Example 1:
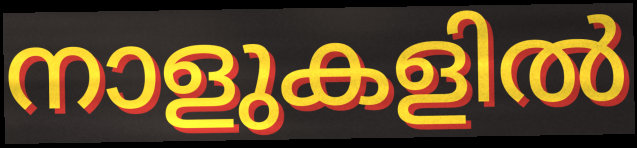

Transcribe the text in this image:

നാളുകളിൽ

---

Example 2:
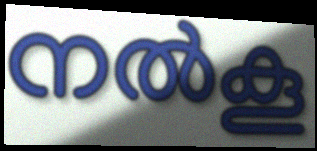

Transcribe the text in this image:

നൽകൂ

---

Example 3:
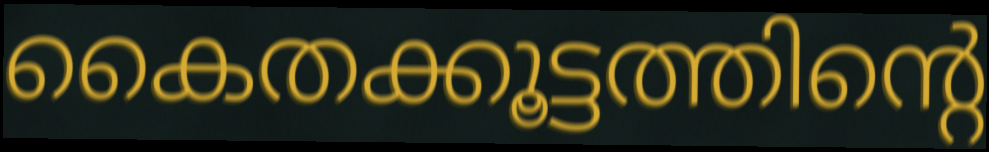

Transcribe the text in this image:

കൈതക്കൂട്ടത്തിന്റെ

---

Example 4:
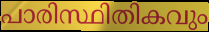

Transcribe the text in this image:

പാരിസ്ഥിതികവും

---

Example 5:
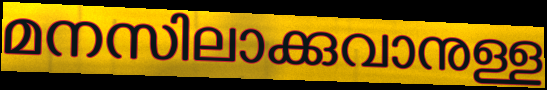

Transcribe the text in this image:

മനസിലാക്കുവാനുള്ള